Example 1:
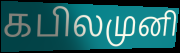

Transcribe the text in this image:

கபிலமுனி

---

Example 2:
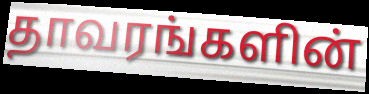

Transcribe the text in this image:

தாவரங்களின்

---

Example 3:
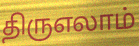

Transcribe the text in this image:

திருஎலாம்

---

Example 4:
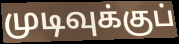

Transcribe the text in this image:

முடிவுக்குப்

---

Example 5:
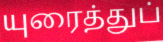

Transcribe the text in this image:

யுரைத்துப்